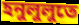
হনুলুলুতে